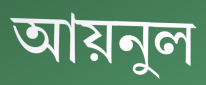
আয়নুল